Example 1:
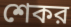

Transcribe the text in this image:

শেকর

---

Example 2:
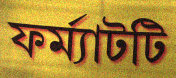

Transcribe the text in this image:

ফর্ম্যাটটি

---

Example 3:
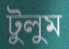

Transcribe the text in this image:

টুলুম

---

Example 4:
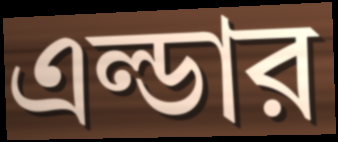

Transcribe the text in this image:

এল্ডার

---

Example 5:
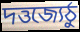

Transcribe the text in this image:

দত্তজ্যেঠু